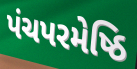
પંચપરમેષ્ઠિ